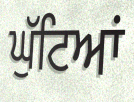
ਘੁੱਟਿਆਂ